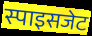
स्पाइसजेट